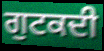
ਗੁਟਕਦੀ